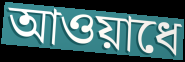
আওয়াধে